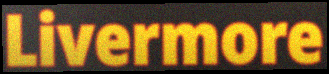
Livermore